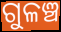
ଗୁଳଞ୍ଚ